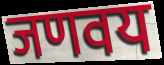
जणवय